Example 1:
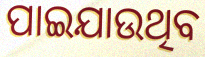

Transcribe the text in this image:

ପାଇଯାଉଥିବ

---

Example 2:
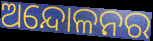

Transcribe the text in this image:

ଅନ୍ଦୋଳନର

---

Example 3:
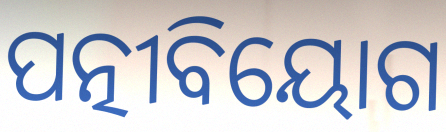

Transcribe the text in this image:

ପତ୍ନୀବିୟୋଗ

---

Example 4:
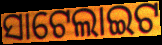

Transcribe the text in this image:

ସାଟେଲାଇଟ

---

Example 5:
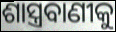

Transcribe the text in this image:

ଶାସ୍ତ୍ରବାଣୀକୁ